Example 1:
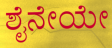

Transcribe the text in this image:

ಶೈನೇಯೇ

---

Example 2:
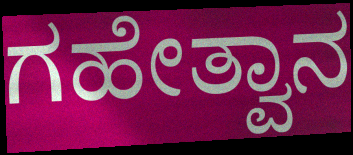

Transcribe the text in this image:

ಗಹೇತ್ವಾನ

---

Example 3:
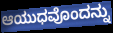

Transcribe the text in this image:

ಆಯುಧವೊಂದನ್ನು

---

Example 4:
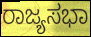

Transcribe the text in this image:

ರಾಜ್ಯಸಭಾ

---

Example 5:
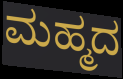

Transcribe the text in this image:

ಮಹ್ಮದ